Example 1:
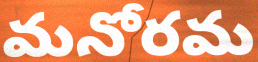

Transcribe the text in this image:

మనోరమ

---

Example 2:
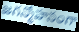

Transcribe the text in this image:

జగన్మోహనంగా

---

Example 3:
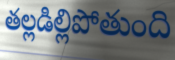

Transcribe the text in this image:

తల్లడిల్లిపోతుంది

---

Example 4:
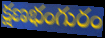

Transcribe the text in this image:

క్షణభంగురం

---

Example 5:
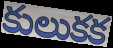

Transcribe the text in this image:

కులుకక